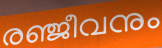
രഞ്ജീവനും